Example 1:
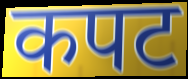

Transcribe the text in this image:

कपट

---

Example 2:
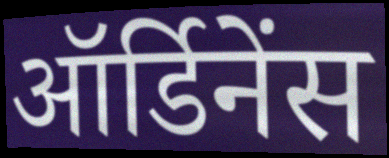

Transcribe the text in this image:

ऑर्डिनेंस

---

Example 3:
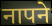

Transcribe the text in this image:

नापने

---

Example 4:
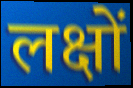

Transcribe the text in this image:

लक्षों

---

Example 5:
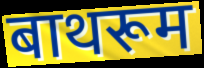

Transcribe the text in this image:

बाथरूम